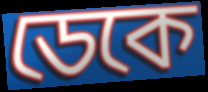
ডেকে